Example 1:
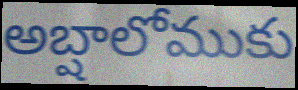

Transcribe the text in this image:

అబ్షాలోముకు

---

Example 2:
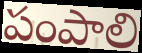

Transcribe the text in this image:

పంపాలి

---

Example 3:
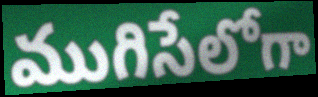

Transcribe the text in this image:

ముగిసేలోగా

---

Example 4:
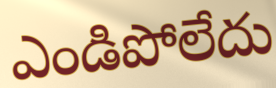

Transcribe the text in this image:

ఎండిపోలేదు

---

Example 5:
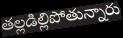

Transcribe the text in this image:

తల్లడిల్లిపోతున్నారు